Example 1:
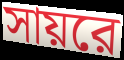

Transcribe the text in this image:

সায়রে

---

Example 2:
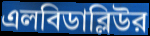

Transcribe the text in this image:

এলবিডাব্লিউর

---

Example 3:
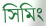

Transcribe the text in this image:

সিমিং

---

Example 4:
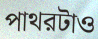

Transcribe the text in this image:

পাথরটাও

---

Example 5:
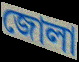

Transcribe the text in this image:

জোলা